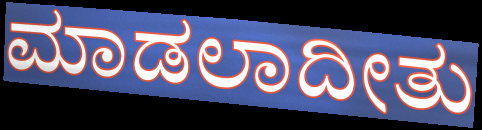
ಮಾಡಲಾದೀತು